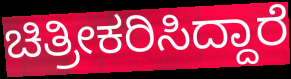
ಚಿತ್ರೀಕರಿಸಿದ್ದಾರೆ